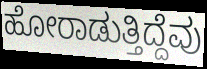
ಹೋರಾಡುತ್ತಿದ್ದೆವು